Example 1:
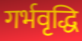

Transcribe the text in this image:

गर्भवृद्धि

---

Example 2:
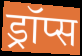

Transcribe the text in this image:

ड्रॉप्स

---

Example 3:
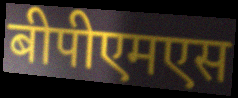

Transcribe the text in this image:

बीपीएमएस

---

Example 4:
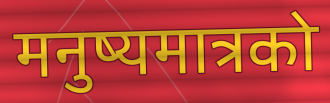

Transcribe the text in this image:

मनुष्यमात्रको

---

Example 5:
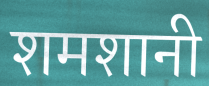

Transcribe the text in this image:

शमशानी